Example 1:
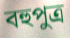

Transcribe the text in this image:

বহুপুত্র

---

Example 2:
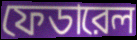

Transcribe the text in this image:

ফেডারেল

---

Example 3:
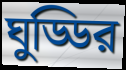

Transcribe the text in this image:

ঘুড্ডির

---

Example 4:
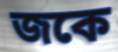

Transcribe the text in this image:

জকে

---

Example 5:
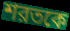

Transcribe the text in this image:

শরতকে